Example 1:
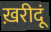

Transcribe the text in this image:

ख़रीदूं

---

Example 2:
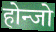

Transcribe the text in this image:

होन्जो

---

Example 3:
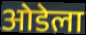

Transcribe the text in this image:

ओडेला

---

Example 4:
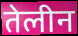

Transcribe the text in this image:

तेलीन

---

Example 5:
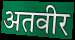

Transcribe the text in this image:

अतवीर